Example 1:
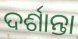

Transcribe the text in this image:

ଦର୍ଶାନ୍ତା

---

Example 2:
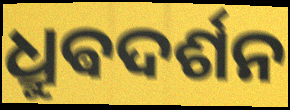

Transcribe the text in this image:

ଧ୍ରୁଵଦର୍ଶନ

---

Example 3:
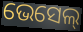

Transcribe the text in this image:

ଭେସେଲ୍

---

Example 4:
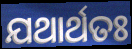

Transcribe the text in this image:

ଯଥାର୍ଥତଃ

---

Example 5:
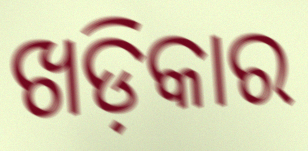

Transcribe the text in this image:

ଖଡ଼ିକାର